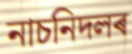
নাচনিদলৰ